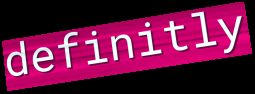
definitly